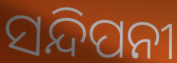
ସନ୍ଦିପନୀ